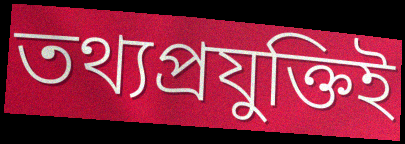
তথ্যপ্রযুক্তিই